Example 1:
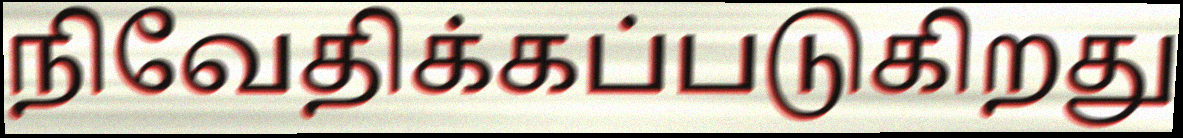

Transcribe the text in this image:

நிவேதிக்கப்படுகிறது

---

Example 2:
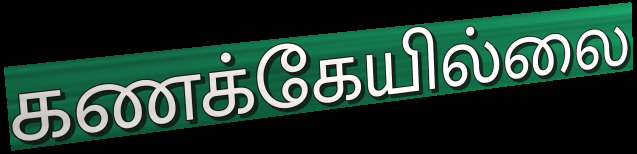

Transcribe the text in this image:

கணக்கேயில்லை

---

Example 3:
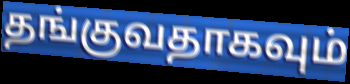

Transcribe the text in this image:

தங்குவதாகவும்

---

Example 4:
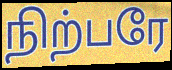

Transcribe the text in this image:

நிற்பரே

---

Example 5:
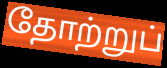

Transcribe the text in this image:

தோற்றுப்